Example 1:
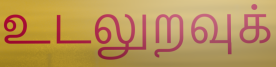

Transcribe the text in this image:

உடலுறவுக்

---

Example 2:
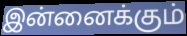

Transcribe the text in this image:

இன்னைக்கும்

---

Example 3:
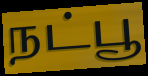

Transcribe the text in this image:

நட்பூ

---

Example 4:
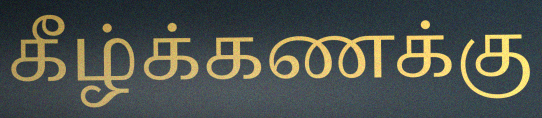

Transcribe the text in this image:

கீழ்க்கணக்கு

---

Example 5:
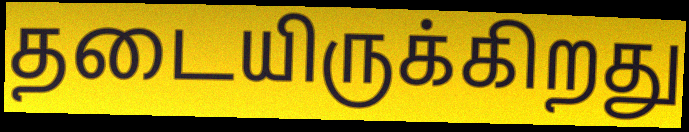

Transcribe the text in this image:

தடையிருக்கிறது